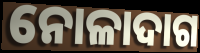
ନୋଳାଦାଗ